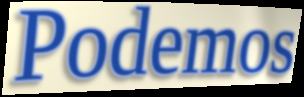
Podemos